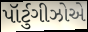
પૉર્ટુગીઝોએ